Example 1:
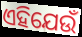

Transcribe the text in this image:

ଏହିଯେଉଁ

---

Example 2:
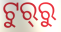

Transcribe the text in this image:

ଟୁର୍‍ରୁ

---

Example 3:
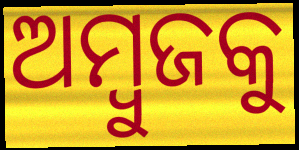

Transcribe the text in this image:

ଅମ୍ବୁଜକୁ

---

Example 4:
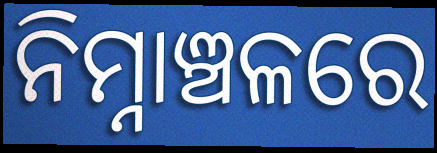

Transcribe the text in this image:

ନିମ୍ନାଞ୍ଚଳରେ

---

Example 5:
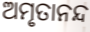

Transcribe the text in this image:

ଅମୃତାନନ୍ଦ